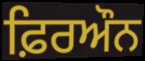
ਫ਼ਿਰਔਨ